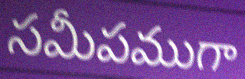
సమీపముగా